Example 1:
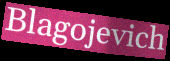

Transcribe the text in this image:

Blagojevich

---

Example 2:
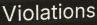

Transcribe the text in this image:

Violations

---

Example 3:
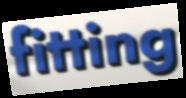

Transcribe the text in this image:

fitting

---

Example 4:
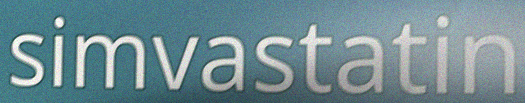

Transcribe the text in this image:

simvastatin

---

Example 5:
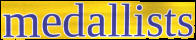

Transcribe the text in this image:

medallists